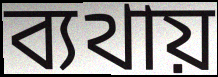
ব্যথায়